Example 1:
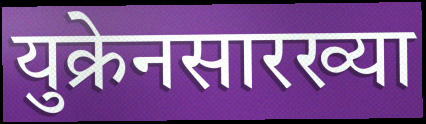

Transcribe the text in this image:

युक्रेनसारख्या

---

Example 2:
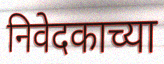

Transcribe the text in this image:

निवेदकाच्या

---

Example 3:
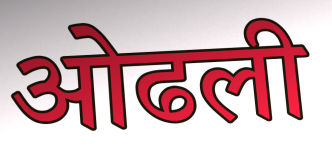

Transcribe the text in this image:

ओढली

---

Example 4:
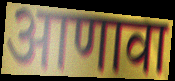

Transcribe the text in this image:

आणावा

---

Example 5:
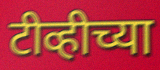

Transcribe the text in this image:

टीव्हीच्या